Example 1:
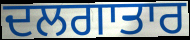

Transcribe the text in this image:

ਦਲਗਾਤਾਰ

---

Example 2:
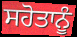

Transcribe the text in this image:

ਸਹੋਤਾਨੂੰ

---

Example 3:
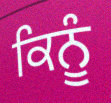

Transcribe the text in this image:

ਕਿਨੂੰ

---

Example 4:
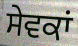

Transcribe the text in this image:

ਸੇਵਕਾਂ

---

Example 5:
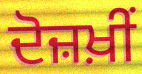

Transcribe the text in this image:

ਦੋਜ਼ਖ਼ੀਂ